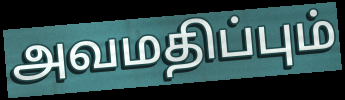
அவமதிப்பும்